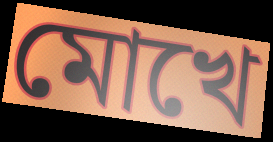
মোখে